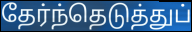
தேர்ந்தெடுத்துப்